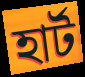
হার্ট